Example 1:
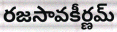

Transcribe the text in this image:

రజసావకీర్ణమ్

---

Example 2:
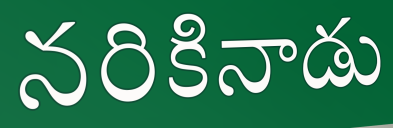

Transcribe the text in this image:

నరికినాడు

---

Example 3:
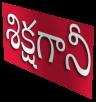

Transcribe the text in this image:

శిక్షగానీ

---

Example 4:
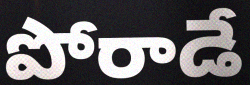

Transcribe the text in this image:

పోరాడే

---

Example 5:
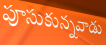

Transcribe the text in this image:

పూసుకున్నవాడు